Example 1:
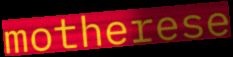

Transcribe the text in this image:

motherese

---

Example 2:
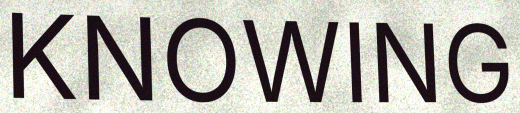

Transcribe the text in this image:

KNOWING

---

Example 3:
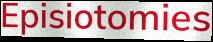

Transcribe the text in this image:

Episiotomies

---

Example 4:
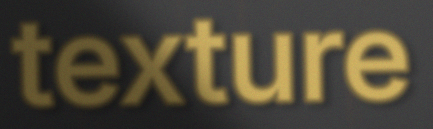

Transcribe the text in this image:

texture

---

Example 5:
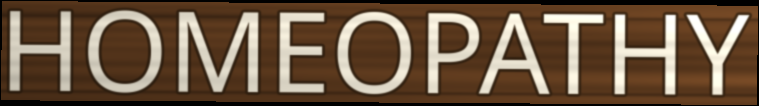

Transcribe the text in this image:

HOMEOPATHY